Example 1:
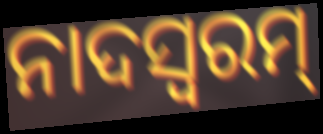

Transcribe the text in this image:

ନାଦସ୍ଵରମ୍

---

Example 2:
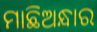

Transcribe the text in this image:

ମାଛିଅନ୍ଧାର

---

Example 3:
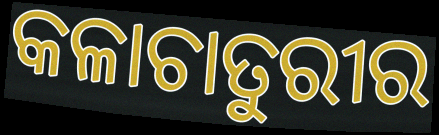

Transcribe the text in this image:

କଳାଚାତୁରୀର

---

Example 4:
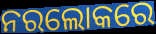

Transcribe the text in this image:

ନରଲୋକରେ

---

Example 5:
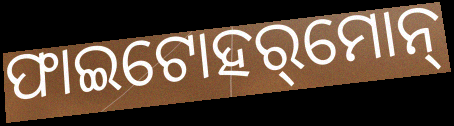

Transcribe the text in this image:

ଫାଇଟୋହର୍‌ମୋନ୍